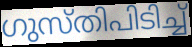
ഗുസ്തിപിടിച്ച്